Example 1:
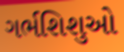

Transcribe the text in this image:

ગર્ભશિશુઓ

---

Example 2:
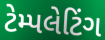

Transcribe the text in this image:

ટેમ્પલેટિંગ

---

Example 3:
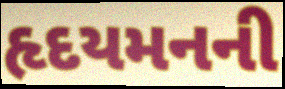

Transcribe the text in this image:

હૃદયમનની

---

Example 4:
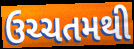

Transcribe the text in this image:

ઉચ્ચતમથી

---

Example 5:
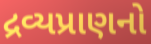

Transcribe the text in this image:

દ્રવ્યપ્રાણનો